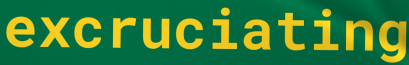
excruciating